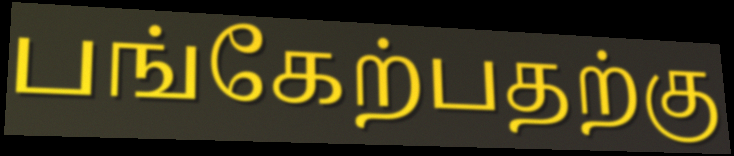
பங்கேற்பதற்கு